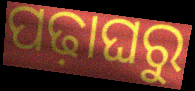
ପଢ଼ାଘରୁ